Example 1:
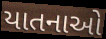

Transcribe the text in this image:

યાતનાઓ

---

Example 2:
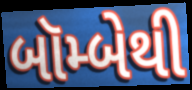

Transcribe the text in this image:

બૉમ્બેથી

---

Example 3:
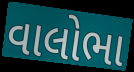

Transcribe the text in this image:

વાલોભા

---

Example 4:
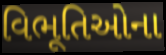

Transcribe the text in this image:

વિભૂતિઓના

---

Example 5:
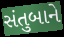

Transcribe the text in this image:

સંતુબાને